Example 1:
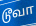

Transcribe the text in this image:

டூவா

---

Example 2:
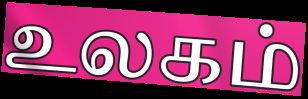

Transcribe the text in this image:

உலகம்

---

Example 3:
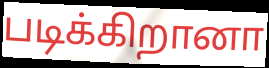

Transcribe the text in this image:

படிக்கிறானா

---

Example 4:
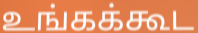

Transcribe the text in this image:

உங்கக்கூட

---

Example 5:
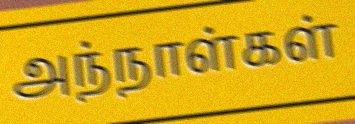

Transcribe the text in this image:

அந்நாள்கள்